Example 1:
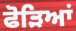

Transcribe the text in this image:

ਫੋੜਿਆਂ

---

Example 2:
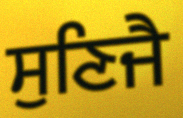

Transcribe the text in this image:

ਸੁਣਿਜੈ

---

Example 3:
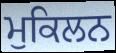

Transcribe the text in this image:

ਮੁਕਿਲਨ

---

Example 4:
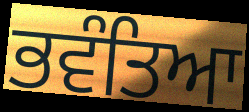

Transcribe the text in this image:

ਭਵੰਤਿਆ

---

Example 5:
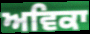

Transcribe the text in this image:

ਅਵਿਕਾ